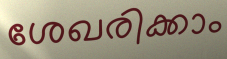
ശേഖരിക്കാം